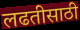
लढतीसाठी